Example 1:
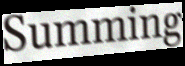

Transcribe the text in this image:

Summing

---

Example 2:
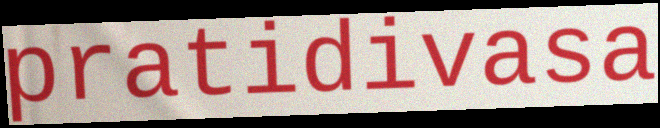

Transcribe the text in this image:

pratidivasa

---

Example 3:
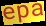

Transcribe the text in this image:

epa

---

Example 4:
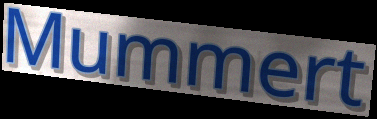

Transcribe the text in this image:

Mummert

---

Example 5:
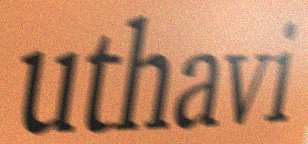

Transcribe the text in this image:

uthavi